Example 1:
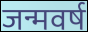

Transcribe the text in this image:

जन्मवर्ष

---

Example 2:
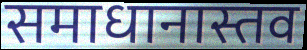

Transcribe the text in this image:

समाधानास्तव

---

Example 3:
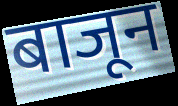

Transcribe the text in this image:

बाजून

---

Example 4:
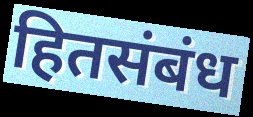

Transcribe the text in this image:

हितसंबंध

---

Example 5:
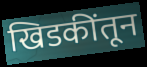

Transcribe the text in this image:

खिडकींतून